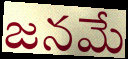
జనమే